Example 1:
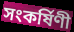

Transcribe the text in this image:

সংকর্ষিণী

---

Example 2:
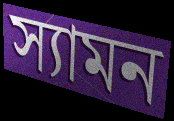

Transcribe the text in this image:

স্যামন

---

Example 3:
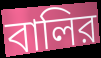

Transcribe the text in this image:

বালির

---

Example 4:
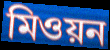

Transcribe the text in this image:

মিওয়ন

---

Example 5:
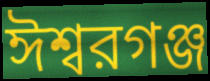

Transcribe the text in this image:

ঈশ্বরগঞ্জ